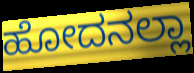
ಹೋದನಲ್ಲಾ